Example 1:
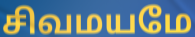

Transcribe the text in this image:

சிவமயமே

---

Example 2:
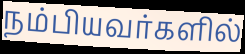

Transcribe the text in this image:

நம்பியவர்களில்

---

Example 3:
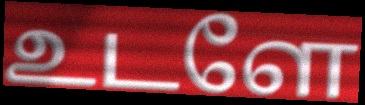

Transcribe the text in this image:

உடளே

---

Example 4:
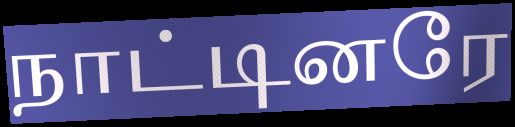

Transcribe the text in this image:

நாட்டினரே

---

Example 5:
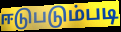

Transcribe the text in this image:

ஈடுபடும்படி